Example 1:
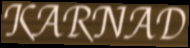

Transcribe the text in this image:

KARNAD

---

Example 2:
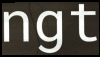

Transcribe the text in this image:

ngt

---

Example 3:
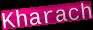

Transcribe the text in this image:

Kharach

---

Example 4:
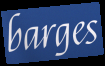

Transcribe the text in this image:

barges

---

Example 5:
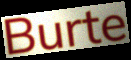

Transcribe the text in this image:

Burte